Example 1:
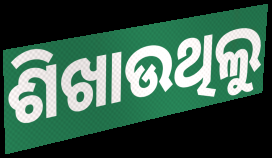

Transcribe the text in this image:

ଶିଖାଉଥିଲୁ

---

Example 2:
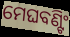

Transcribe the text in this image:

ମେଘବଣ୍ଟିଂ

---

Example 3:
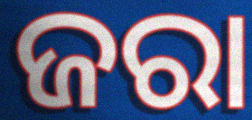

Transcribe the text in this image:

ଜରା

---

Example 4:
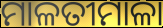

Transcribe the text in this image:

ମାଳତୀମାଳା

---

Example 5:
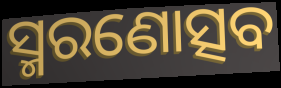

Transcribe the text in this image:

ସ୍ମରଣୋତ୍ସବ